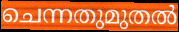
ചെന്നതുമുതൽ